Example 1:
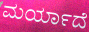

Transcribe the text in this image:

ಮರ್ಯಾದೆ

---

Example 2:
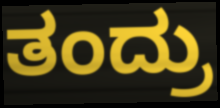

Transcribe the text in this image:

ತಂದ್ರು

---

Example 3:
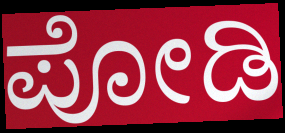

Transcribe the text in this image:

ಪೋಡಿ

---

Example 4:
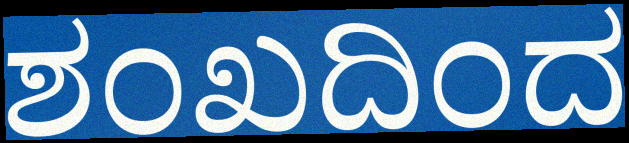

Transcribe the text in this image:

ಶಂಖದಿಂದ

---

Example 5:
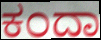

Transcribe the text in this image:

ಕಂದಾ